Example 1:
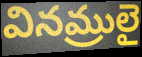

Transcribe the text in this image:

వినమ్రులై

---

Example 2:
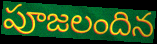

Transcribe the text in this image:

పూజలందిన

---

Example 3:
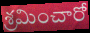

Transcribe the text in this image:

శ్రమించారో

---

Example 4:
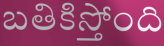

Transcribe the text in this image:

బతికిస్తోంది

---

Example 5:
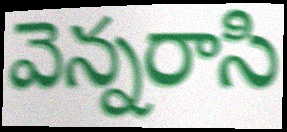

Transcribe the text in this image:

వెన్నరాసి